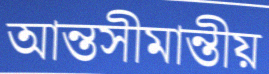
আন্তসীমান্তীয়